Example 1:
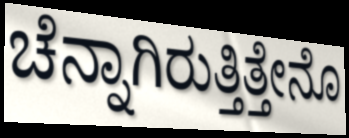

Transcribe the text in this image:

ಚೆನ್ನಾಗಿರುತ್ತಿತ್ತೇನೊ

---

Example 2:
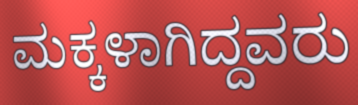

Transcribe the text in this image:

ಮಕ್ಕಳಾಗಿದ್ದವರು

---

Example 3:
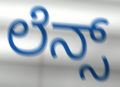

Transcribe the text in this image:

ಲೆನ್ಸ್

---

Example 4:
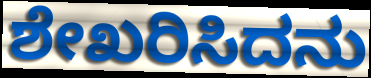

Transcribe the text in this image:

ಶೇಖರಿಸಿದನು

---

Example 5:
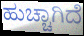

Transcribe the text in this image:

ಹುಚ್ಚಾಗಿದೆ